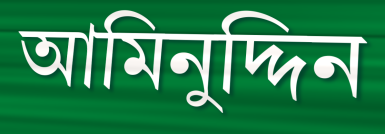
আমিনুদ্দিন